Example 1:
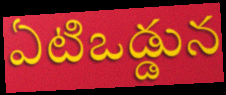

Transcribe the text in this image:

ఏటిఒడ్డున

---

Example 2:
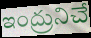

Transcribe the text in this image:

ఇంద్రునిచే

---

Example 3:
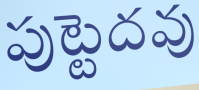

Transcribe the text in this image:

పుట్టెదవు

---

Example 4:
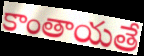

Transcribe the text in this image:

కాంతాయతే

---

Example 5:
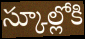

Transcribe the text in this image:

స్కూల్లోకి